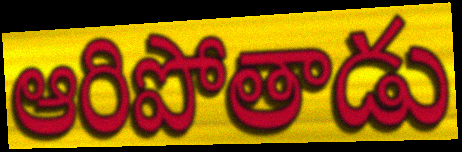
ఆరిపోతాడు